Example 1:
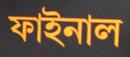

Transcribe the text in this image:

ফাইনাল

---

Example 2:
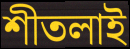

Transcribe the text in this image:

শীতলাই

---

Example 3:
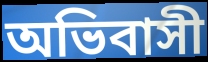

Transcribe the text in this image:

অভিবাসী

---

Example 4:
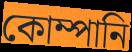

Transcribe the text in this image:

কোম্পানি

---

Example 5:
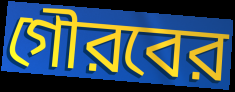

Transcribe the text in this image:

গৌরবের